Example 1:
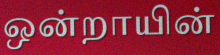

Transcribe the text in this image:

ஒன்றாயின்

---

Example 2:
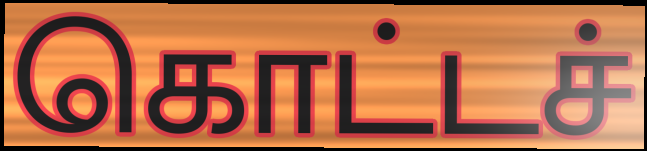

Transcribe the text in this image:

கொட்டச்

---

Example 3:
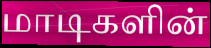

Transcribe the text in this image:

மாடிகளின்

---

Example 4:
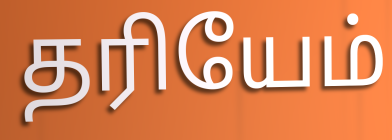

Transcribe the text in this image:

தரியேம்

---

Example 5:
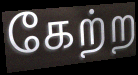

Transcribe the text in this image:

கேற்ற